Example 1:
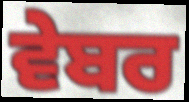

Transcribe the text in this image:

ਵੇਬਰ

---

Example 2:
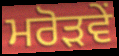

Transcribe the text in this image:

ਮਰੋੜਵੇਂ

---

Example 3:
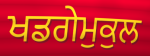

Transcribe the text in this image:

ਖਡਗੇਮੁਕੁਲ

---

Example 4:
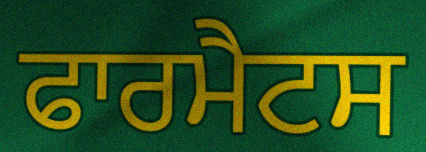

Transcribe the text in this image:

ਫਾਰਮੈਟਸ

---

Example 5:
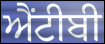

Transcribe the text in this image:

ਐਂਟੀਬੀ